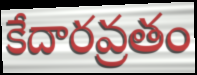
కేదారవ్రతం